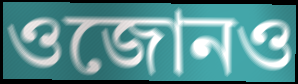
ওজোনও